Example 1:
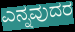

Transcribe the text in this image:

ಎನ್ನವುದರ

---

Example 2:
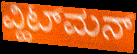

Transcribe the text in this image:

ವ್ಹಿಟ್‌ಮನ್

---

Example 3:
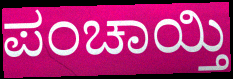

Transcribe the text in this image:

ಪಂಚಾಯ್ತಿ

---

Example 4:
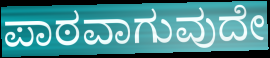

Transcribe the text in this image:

ಪಾಠವಾಗುವುದೇ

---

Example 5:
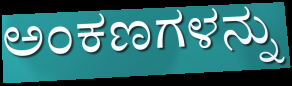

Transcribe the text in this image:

ಅಂಕಣಗಳನ್ನು